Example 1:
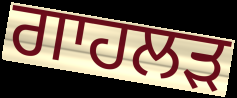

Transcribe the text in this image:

ਗਾਹਲੜ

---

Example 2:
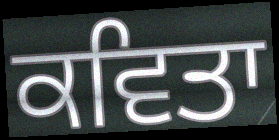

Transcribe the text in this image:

ਕਵਿਤਾ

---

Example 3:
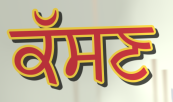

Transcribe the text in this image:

ਕੱਸਣ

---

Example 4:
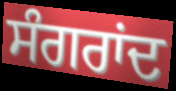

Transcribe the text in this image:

ਸੰਗਰਾਂਦ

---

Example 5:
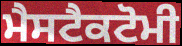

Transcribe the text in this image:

ਮੈਸਟੈਕਟੋਮੀ